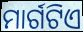
ମାର୍ଗଟିଏ